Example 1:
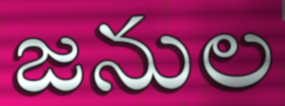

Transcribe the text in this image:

జనుల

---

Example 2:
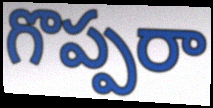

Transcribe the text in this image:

గొప్పరా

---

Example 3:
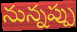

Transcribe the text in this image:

నున్నప్పు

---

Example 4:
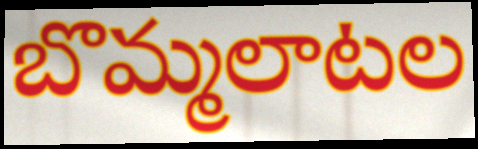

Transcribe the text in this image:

బొమ్మలాటల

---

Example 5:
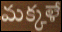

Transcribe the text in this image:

మక్కళే